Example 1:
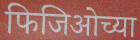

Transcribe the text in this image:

फिजिओच्या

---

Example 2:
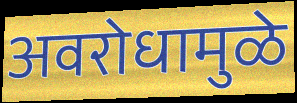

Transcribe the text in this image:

अवरोधामुळे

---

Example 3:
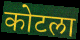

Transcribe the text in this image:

कोटला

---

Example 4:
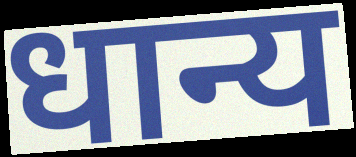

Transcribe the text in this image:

धान्य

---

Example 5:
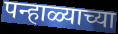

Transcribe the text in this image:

पन्हाळ्याच्या